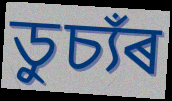
ডুচ্যঁৰ